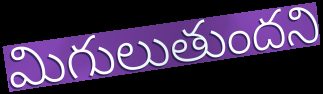
మిగులుతుందని